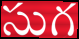
సుగ